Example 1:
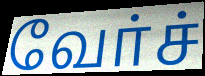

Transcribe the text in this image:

வேர்ச்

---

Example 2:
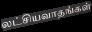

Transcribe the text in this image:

லட்சியவாதங்கள்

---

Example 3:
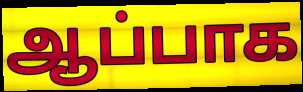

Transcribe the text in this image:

ஆப்பாக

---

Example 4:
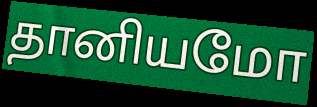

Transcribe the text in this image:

தானியமோ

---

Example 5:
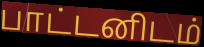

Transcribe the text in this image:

பாட்டனிடம்